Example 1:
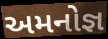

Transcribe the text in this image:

અમનોજ્ઞ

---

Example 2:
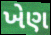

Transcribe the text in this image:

ખેણ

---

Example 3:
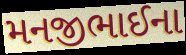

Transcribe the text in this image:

મનજીભાઈના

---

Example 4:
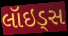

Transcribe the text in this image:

લૉઇડ્સ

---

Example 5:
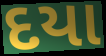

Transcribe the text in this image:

દયા